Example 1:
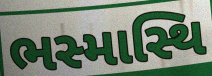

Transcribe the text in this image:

ભસ્માસ્થિ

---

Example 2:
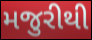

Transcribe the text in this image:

મજુરીથી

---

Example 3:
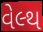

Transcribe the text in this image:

વેલ્થ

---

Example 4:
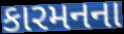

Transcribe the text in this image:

કારમનના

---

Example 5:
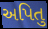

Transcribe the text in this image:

અપિતુ